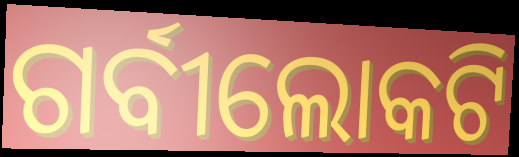
ଗର୍ବୀଲୋକଟି